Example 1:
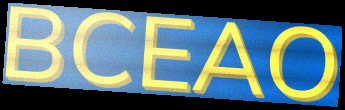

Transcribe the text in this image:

BCEAO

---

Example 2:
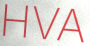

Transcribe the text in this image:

HVA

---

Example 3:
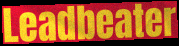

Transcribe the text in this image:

Leadbeater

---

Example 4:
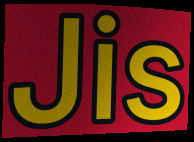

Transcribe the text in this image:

Jis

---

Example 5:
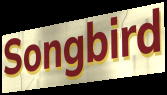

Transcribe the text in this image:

Songbird